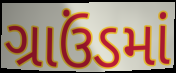
ગ્રાઉંડમાં